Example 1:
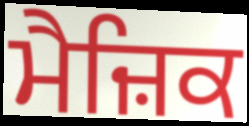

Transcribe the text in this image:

ਮੈਜ਼ਿਕ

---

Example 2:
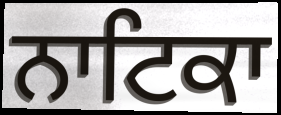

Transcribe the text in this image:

ਨਾਟਿਕਾ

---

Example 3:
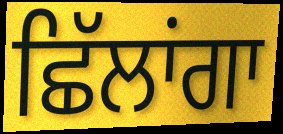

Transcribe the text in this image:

ਛਿੱਲਾਂਗਾ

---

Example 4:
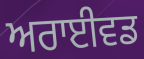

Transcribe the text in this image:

ਅਰਾਈਵਡ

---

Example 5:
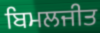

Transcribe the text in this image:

ਬਿਮਲਜੀਤ